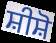
ਸ਼ੀਸ਼ੋ